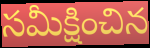
సమీక్షించిన